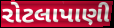
રોટલાપાણી